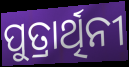
ପୁତ୍ରାର୍ଥିନୀ